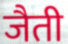
जैती